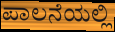
ಪಾಲನೆಯಲ್ಲಿ